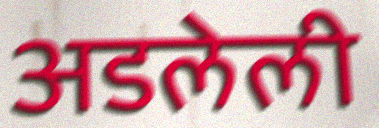
अडलेली